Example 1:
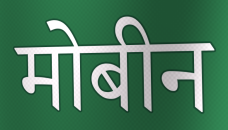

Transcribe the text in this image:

मोबीन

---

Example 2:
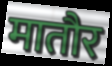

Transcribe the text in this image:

मातौर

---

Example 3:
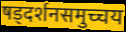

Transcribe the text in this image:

षड्दर्शनसमुच्चय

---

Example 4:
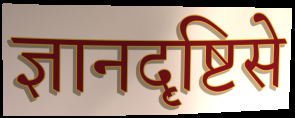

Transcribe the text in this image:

ज्ञानदृष्टिसे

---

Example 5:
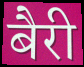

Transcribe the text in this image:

बैरी